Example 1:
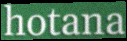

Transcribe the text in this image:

hotana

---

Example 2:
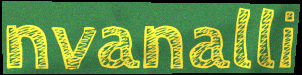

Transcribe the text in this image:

nvanalli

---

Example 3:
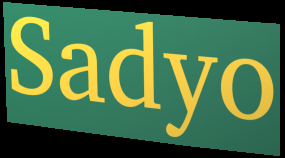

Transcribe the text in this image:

Sadyo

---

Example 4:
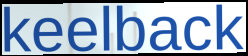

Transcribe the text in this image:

keelback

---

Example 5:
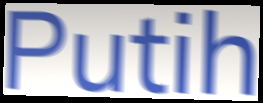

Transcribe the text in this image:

Putih